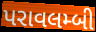
પરાવલમ્બી